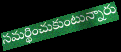
సమర్థించుకుంటున్నారు